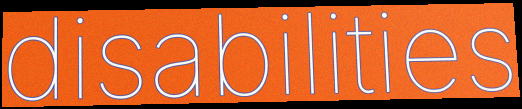
disabilities